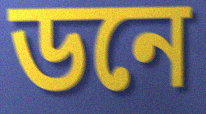
ডনে